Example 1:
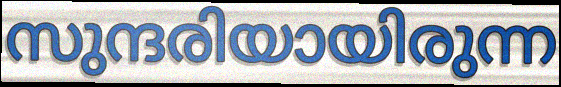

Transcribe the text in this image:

സുന്ദരിയായിരുന്ന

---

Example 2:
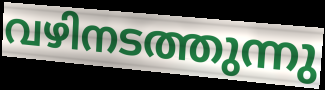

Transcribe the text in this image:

വഴിനടത്തുന്നു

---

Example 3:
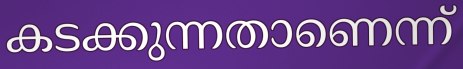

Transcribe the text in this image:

കടക്കുന്നതാണെന്ന്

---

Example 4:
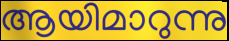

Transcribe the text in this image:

ആയിമാറുന്നു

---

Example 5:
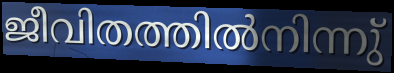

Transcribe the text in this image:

ജീവിതത്തിൽനിന്നു്